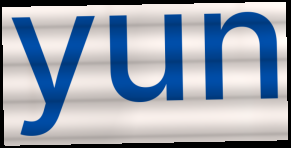
yun